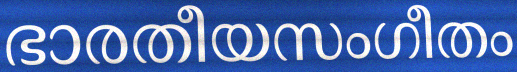
ഭാരതീയസംഗീതം